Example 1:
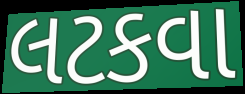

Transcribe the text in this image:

લટકવા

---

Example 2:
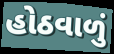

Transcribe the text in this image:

હોઠવાળું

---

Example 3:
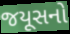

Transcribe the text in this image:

જયૂસનો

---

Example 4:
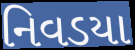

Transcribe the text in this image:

નિવડયા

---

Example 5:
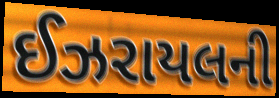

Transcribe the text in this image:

ઈઝરાયલની